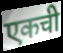
एकची